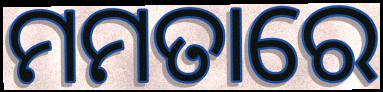
ମମତାରେ